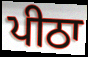
ਪੀਠਾ